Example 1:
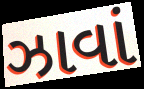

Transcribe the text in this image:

ઝાવાં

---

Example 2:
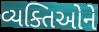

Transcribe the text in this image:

વ્યક્તિઓને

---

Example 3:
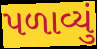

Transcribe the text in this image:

પળાવ્યું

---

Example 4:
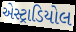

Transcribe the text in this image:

એસ્ટ્રાડિયોલ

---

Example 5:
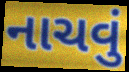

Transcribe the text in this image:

નાચવું